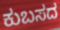
ಕುಬಸದ